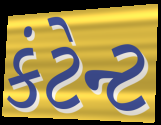
કંટેન્ટ